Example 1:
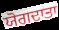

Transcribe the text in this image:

ਯੋਗਦਾਤਾ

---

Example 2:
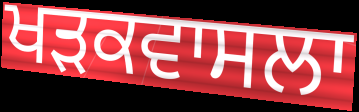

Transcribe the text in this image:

ਖੜਕਵਾਸਲਾ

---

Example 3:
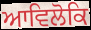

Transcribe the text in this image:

ਆਵਿਲੋਕਿ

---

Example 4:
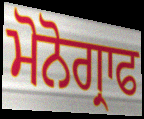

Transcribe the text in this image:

ਮੋਨੋਗ੍ਰਾਫ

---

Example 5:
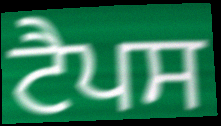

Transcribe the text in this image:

ਟੈਪਸ